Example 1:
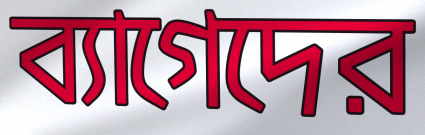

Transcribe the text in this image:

ব্যাগেদের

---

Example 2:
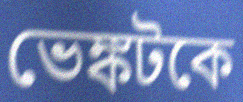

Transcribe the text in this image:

ভেঙ্কটকে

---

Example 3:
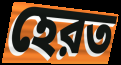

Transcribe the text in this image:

হেরত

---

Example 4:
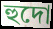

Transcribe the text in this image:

হুদো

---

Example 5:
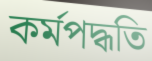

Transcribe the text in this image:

কর্মপদ্ধতি